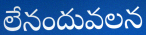
లేనందువలన